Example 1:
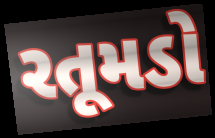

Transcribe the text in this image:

રતૂમડો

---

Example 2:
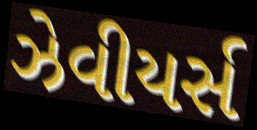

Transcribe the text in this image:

ઝેવીયર્સ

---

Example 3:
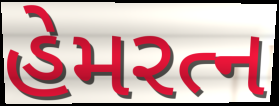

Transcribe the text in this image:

હેમરત્ન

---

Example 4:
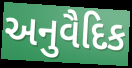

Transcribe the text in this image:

અનુવૈદિક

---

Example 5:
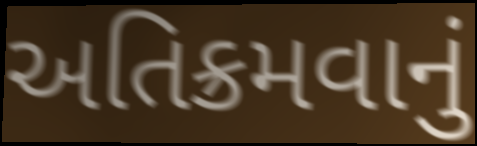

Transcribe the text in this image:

અતિક્રમવાનું